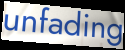
unfading